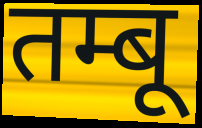
तम्बू